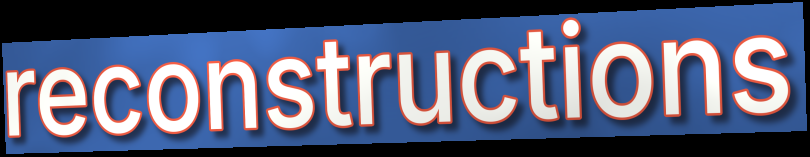
reconstructions